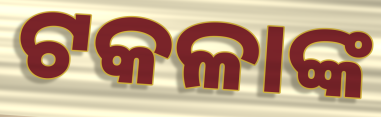
ଟକଳାଙ୍କ